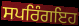
ਸਪਰਿੰਗਇਹ